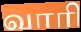
வாரி